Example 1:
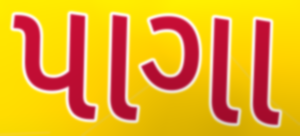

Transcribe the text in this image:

પાગા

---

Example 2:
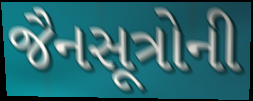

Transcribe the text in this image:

જૈનસૂત્રોની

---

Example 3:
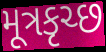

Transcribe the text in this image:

મૂત્રકૃચ્છ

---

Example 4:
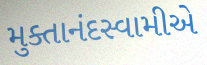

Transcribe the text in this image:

મુક્તાનંદસ્વામીએ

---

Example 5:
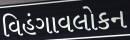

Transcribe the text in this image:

વિહંગાવલોકન